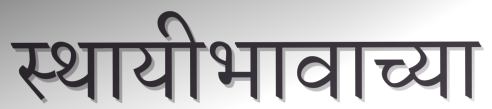
स्थायीभावाच्या